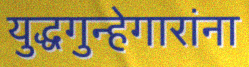
युद्धगुन्हेगारांना